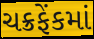
ચક્રફેંકમાં